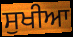
ਸੁਖੀਆ